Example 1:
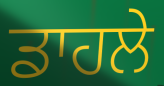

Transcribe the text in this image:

ਡਾਹਲੇ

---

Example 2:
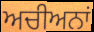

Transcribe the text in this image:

ਅਚੀਅਨਾਂ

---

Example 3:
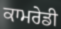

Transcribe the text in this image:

ਕਾਮਰੇਡੀ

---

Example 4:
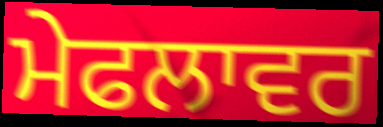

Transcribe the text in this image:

ਮੇਫਲਾਵਰ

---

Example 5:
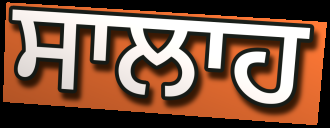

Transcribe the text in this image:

ਸਾਲਾਹ